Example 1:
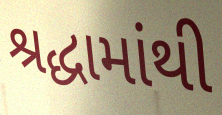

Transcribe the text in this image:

શ્રદ્ધામાંથી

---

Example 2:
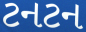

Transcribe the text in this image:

ટનટન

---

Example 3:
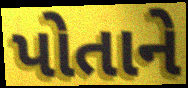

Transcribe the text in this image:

પોતાને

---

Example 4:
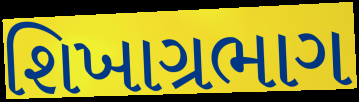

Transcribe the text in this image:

શિખાગ્રભાગ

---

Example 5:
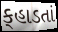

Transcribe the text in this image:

ક્‌હાડતાં